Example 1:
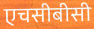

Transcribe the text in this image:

एचसीबीसी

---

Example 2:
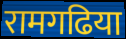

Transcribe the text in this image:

रामगढिया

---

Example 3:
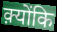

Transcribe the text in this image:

क़्योंकि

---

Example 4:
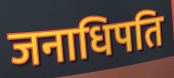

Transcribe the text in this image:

जनाधिपति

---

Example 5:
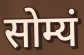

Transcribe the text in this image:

सोम्यं